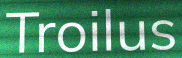
Troilus